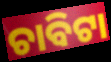
ଚାବିଟା